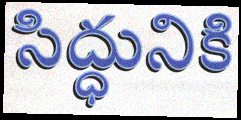
సిద్ధునికి